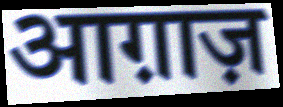
आग़ाज़